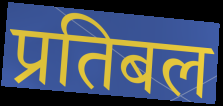
प्रतिबल